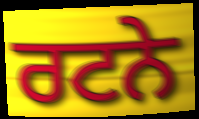
ਰਟਨੇ